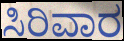
ಸಿರಿವಾರ